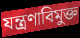
যন্ত্রণাবিমুক্ত